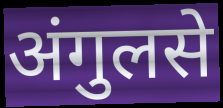
अंगुलसे